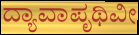
ದ್ಯಾವಾಪೃಥಿವೀ